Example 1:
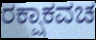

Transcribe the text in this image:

ರಕ್ಷಾಕವಚ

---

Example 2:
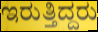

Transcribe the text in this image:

ಇರುತ್ತಿದ್ದರು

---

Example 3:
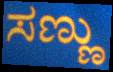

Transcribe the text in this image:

ಸಣ್ಣು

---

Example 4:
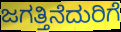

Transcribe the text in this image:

ಜಗತ್ತಿನೆದುರಿಗೆ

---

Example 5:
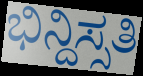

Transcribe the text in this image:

ಭಿನ್ದಿಸ್ಸತಿ